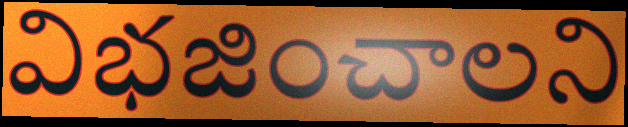
విభజించాలని